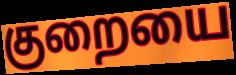
குறையை